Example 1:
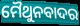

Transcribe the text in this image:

ମୈଥୁନବାଦର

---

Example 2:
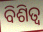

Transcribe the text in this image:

ବିଶିତ୍ଵ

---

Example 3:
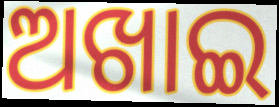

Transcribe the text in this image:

ଅଖାଇ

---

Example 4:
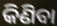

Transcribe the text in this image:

କିଣିବା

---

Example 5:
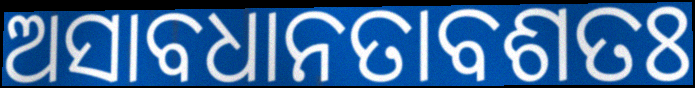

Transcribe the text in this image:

ଅସାବଧାନତାବଶତଃ